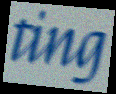
ting